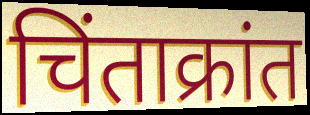
चिंताक्रांत